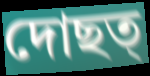
দোছত্